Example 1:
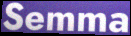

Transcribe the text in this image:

Semma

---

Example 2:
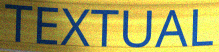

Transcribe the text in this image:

TEXTUAL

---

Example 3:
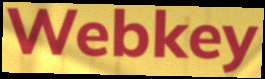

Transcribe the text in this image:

Webkey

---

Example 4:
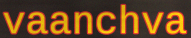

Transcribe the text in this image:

vaanchva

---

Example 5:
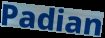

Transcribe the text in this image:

Padian